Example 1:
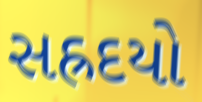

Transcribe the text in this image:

સહ્રદયો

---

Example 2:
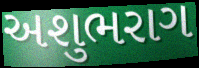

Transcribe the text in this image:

અશુભરાગ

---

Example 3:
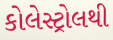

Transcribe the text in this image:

કોલેસ્ટ્રોલથી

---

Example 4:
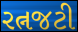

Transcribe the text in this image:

રત્નજટી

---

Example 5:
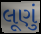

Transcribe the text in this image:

લૂણું